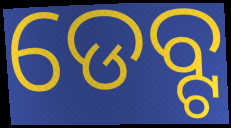
ଡେବ୍ଟ